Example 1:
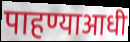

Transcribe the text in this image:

पाहण्याआधी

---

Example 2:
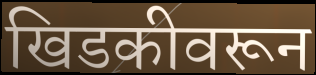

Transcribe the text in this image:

खिडकीवरून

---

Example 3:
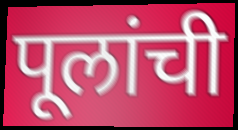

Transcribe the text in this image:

पूलांची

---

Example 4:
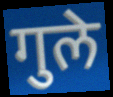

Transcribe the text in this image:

गुले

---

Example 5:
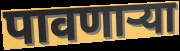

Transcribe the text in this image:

पावणाऱ्या